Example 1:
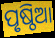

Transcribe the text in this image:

ପୃଷ୍ଠିଆ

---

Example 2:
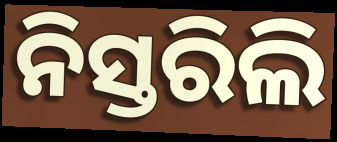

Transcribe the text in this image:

ନିସ୍ତରିଲି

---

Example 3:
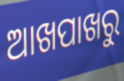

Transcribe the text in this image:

ଆଖପାଖରୁ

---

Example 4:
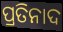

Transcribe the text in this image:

ପ୍ରତିନାଦ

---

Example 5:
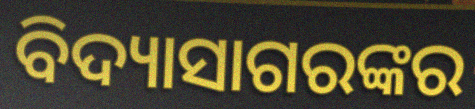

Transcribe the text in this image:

ବିଦ୍ୟାସାଗରଙ୍କର